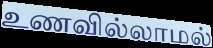
உணவில்லாமல்